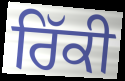
ਰਿੱਕੀ